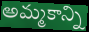
అమ్మకాన్ని